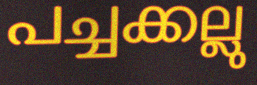
പച്ചക്കല്ലു